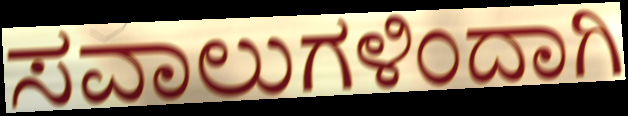
ಸವಾಲುಗಳಿಂದಾಗಿ